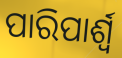
ପାରିପାର୍ଶ୍ୱ